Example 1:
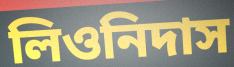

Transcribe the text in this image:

লিওনিদাস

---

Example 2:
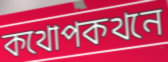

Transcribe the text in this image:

কথোপকথনে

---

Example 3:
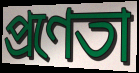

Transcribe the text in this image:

প্রণেতা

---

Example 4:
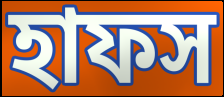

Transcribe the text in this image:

হাফস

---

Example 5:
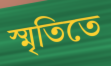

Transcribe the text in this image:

স্মৃতিতে